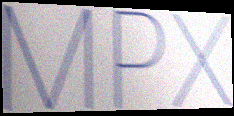
MPX